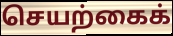
செயற்கைக்